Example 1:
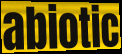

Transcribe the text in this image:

abiotic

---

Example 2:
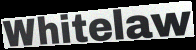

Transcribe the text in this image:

Whitelaw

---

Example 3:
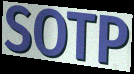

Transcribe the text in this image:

SOTP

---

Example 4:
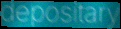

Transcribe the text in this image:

depositary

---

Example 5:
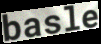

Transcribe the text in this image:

basle